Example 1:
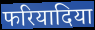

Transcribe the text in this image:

फरियादिया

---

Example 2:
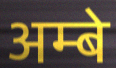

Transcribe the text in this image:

अम्बे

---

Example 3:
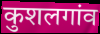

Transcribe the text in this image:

कुशलगांव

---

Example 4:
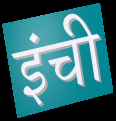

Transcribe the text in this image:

इंची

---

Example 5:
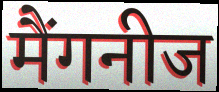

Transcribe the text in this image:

मैंगनीज